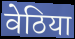
वेठिया